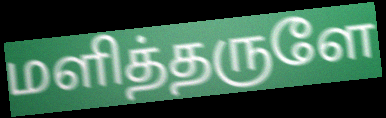
மளித்தருளே